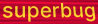
superbug